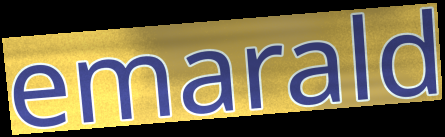
emarald